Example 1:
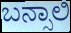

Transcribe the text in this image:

ಬನ್ಸಾಲಿ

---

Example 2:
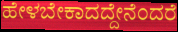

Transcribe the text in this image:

ಹೇಳಬೇಕಾದದ್ದೇನೆಂದರೆ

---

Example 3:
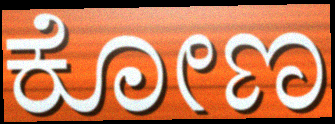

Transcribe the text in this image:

ಕೋಣ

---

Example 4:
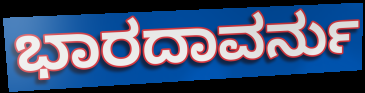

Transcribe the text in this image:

ಭಾರದಾವರ್ನು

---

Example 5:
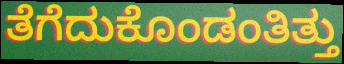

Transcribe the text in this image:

ತೆಗೆದುಕೊಂಡಂತಿತ್ತು